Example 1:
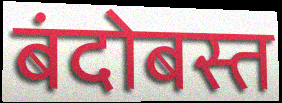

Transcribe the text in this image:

बंदोबस्त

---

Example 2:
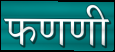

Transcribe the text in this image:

फणणी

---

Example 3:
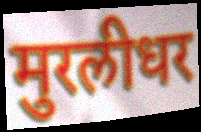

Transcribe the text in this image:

मुरलीधर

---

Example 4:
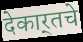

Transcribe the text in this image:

देकार्तचे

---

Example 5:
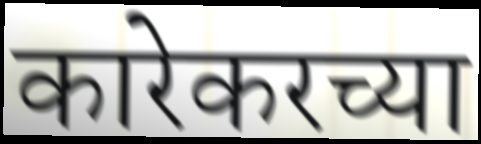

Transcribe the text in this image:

कारेकरच्या